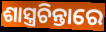
ଶାସ୍ତ୍ରଚିନ୍ତାରେ